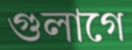
গুলাগে